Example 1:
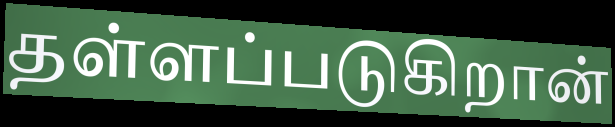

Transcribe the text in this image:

தள்ளப்படுகிறான்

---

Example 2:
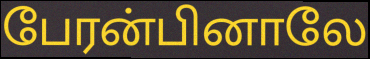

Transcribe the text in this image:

பேரன்பினாலே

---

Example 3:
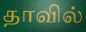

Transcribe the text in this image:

தாவில்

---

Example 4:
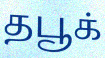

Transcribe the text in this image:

தபூக்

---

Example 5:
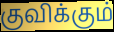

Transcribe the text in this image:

குவிக்கும்